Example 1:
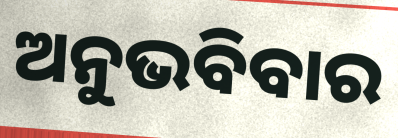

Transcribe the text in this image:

ଅନୁଭବିବାର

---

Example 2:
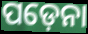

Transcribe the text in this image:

ପଡ଼େନା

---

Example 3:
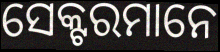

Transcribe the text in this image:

ସେକ୍ଟରମାନେ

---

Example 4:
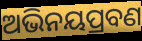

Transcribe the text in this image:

ଅଭିନୟପ୍ରବଣ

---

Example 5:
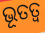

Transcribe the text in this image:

ଭୂତତ୍ୱ